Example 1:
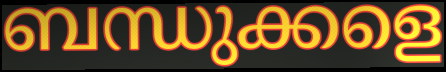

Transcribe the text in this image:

ബന്ധുക്കളെ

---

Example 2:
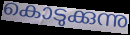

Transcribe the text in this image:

കൊടുക്കുന്നു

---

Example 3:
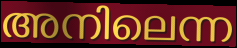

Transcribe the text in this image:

അനിലെന്ന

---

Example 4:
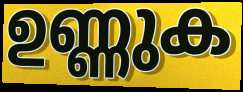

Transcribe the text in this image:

ഉണ്ണുക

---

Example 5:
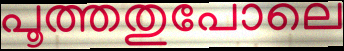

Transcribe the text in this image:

പൂത്തതുപോലെ